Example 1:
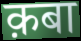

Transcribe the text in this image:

क़बा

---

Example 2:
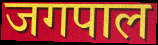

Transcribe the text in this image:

जगपाल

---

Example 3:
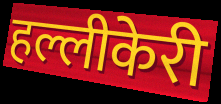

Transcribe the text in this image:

हल्लीकेरी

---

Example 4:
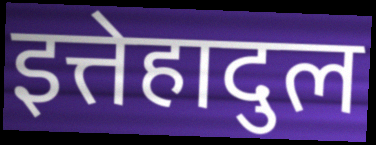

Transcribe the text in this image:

इत्तेहादुल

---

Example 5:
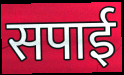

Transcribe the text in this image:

सपाई